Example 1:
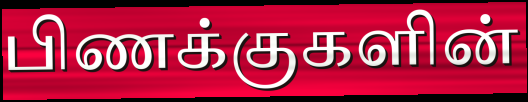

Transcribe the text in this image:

பிணக்குகளின்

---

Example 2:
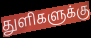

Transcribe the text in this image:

துளிகளுக்கு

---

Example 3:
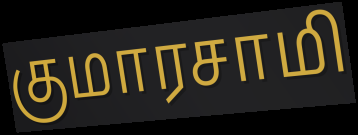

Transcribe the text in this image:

குமாரசாமி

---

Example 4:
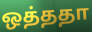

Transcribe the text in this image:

ஒத்ததா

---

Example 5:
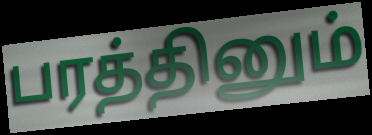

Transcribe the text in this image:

பரத்தினும்